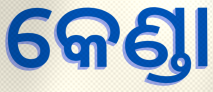
କେଣ୍ଡା